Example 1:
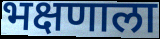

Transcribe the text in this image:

भक्षणाला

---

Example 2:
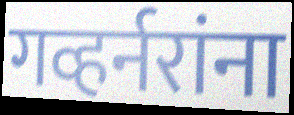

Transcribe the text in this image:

गव्हर्नरांना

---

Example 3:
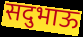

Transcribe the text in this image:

सदुभाऊ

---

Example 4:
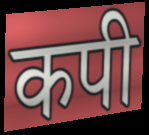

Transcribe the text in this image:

कपी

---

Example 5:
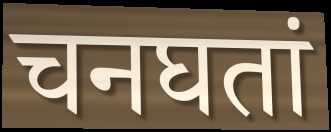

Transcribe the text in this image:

चनघतां